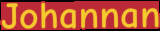
Johannan